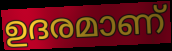
ഉദരമാണ്